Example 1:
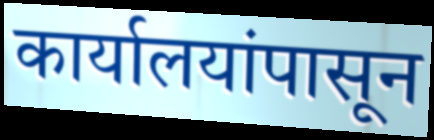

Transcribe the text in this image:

कार्यालयांपासून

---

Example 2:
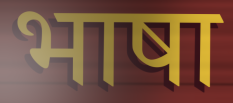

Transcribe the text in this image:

भाषा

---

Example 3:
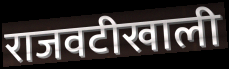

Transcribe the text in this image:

राजवटीखाली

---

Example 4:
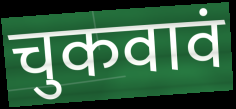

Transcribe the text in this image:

चुकवावं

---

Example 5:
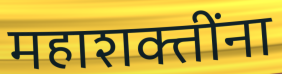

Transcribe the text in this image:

महाशक्तींना